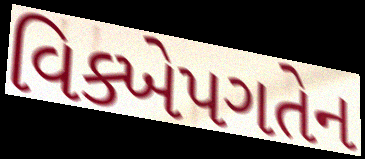
વિક્ખેપગતેન